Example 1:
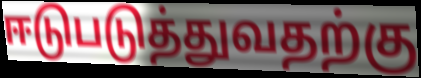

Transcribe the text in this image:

ஈடுபடுத்துவதற்கு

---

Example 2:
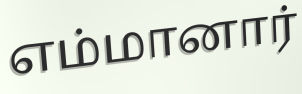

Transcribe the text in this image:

எம்மானார்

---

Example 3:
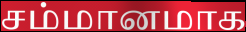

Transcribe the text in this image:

சம்மானமாக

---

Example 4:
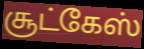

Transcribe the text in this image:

சூட்கேஸ்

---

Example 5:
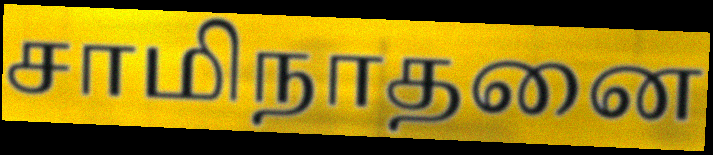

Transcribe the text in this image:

சாமிநாதனை